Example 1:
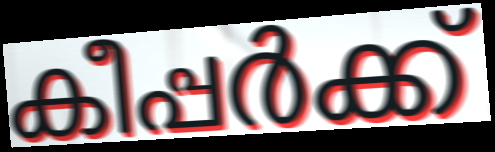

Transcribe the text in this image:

കീപ്പർക്ക്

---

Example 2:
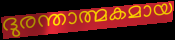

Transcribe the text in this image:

ദുരന്താത്മകമായ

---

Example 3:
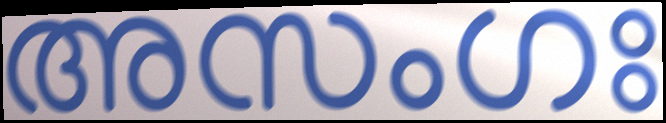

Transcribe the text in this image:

അസംഗഃ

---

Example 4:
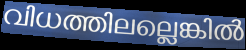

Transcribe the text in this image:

വിധത്തിലല്ലെങ്കിൽ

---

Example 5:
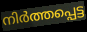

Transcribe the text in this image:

നിർത്തപ്പെട്ട